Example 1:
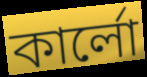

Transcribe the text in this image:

কার্লো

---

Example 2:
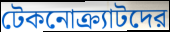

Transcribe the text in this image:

টেকনোক্র্যাটদের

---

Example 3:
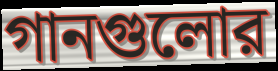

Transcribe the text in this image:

গানগুলোর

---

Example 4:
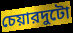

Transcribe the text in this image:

চেয়ারদুটো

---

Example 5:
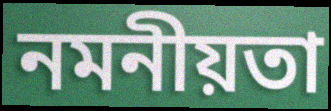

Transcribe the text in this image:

নমনীয়তা